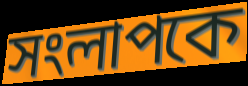
সংলাপকে